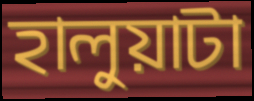
হালুয়াটা